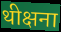
थीक्षना